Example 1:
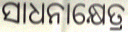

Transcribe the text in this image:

ସାଧନାକ୍ଷେତ୍ର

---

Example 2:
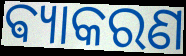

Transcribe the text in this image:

ଵ୍ଯାକରଣ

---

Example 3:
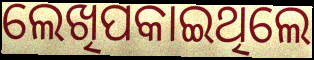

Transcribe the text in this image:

ଲେଖିପକାଇଥିଲେ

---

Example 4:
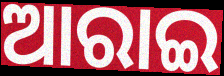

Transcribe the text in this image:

ଆରାଇ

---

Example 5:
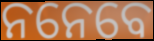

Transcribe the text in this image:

ନନେବେ